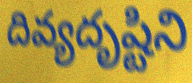
దివ్యదృష్టిని